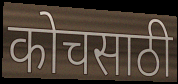
कोचसाठी